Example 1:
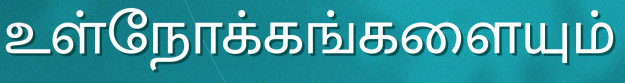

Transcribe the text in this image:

உள்நோக்கங்களையும்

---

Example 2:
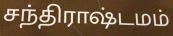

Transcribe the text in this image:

சந்திராஷ்டமம்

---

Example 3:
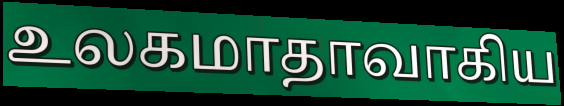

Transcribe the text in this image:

உலகமாதாவாகிய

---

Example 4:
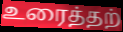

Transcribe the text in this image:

உரைத்தற்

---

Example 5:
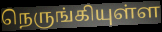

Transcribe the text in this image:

நெருங்கியுள்ள